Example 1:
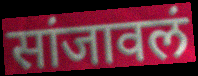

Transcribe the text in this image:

सांजावलं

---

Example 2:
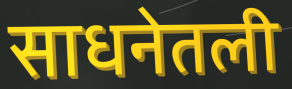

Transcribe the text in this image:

साधनेतली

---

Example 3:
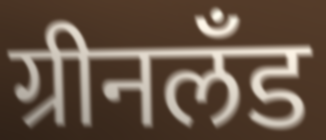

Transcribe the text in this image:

ग्रीनलँड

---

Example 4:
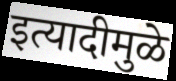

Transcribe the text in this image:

इत्यादीमुळे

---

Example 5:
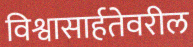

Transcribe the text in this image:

विश्वासार्हतेवरील